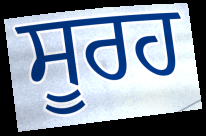
ਸੂਰਹ